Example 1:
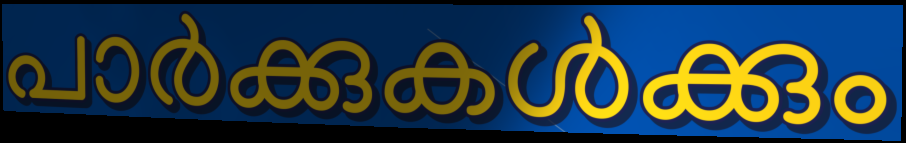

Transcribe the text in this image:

പാർക്കുകൾക്കും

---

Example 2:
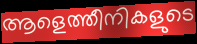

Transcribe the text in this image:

ആളെത്തീനികളുടെ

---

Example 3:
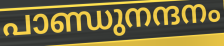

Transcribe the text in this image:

പാണ്ഡുനന്ദനം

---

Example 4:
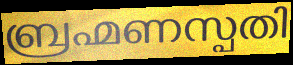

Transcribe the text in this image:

ബ്രഹ്മണസ്പതി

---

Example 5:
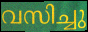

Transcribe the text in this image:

വസിച്ചു